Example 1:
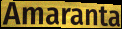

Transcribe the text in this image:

Amaranta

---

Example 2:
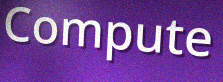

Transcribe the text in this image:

Compute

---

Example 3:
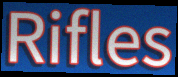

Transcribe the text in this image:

Rifles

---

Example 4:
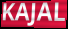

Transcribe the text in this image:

KAJAL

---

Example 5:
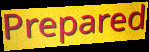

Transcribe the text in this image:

Prepared